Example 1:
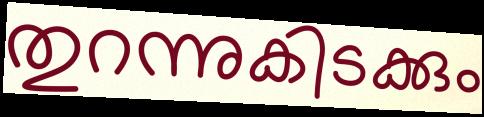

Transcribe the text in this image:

തുറന്നുകിടക്കും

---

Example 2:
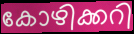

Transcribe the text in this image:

കോഴിക്കറി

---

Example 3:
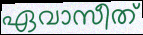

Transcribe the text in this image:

ഏവാസീത്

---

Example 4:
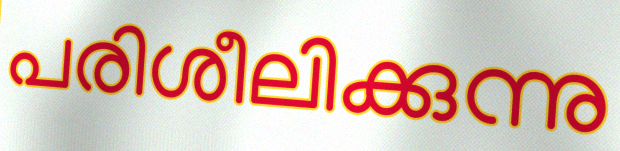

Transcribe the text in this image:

പരിശീലിക്കുന്നു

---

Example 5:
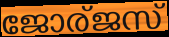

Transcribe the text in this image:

ജോര്ജസ്